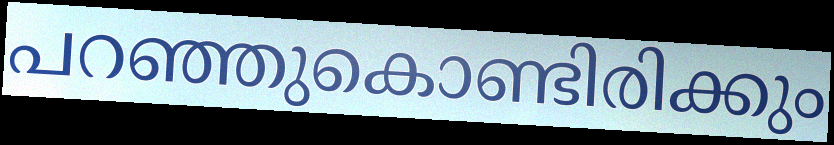
പറഞ്ഞുകൊണ്ടിരിക്കും